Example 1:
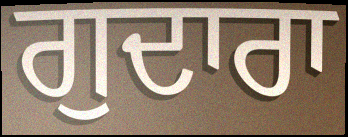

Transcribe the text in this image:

ਗੁਦਾਰਾ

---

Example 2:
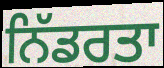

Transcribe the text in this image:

ਨਿੱਡਰਤਾ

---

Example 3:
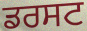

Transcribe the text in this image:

ਡਰਸਟ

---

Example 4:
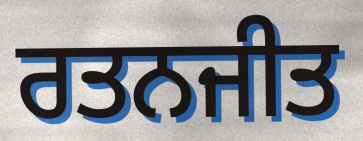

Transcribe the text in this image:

ਰਤਨਜੀਤ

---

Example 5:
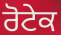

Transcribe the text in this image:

ਰੋਟੇਕ